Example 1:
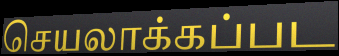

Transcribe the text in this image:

செயலாக்கப்பட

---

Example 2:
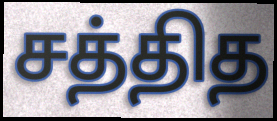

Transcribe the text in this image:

சத்தித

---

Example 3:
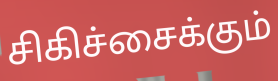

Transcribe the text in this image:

சிகிச்சைக்கும்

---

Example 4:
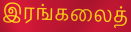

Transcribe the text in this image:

இரங்கலைத்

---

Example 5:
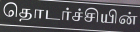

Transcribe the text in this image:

தொடர்ச்சியின்